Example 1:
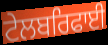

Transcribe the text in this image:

ਟੇਲਬਰਿਫਾਈ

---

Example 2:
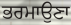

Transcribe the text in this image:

ਭਰਮਾਉਣਾ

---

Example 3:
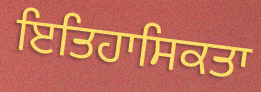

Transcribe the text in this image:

ਇਤਿਹਾਸਿਕਤਾ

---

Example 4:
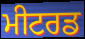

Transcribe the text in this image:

ਮੀਟਰਡ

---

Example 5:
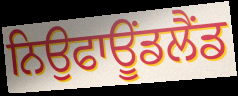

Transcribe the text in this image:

ਨਿਉਫਾਊਂਡਲੈਂਡ